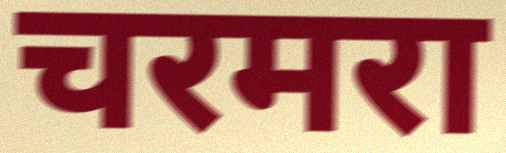
चरमरा